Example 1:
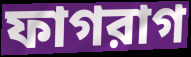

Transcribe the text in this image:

ফাগরাগ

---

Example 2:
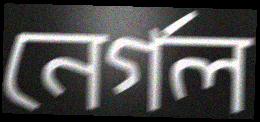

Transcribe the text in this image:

নের্গল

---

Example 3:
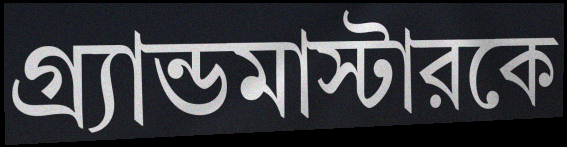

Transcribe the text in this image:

গ্র্যান্ডমাস্টারকে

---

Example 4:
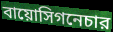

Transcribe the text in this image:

বায়োসিগনেচার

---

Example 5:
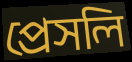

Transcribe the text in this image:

প্রেসলি